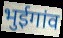
भुईगांव